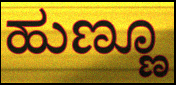
ಹುಣ್ಣೂ